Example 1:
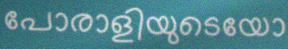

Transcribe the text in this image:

പോരാളിയുടെയോ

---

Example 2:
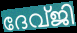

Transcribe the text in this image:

ദേവ്ജി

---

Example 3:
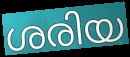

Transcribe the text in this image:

ശരിയ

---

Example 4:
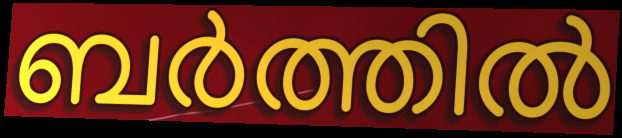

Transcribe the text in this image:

ബർത്തിൽ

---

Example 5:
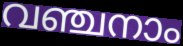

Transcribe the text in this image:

വഞ്ചനാം